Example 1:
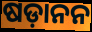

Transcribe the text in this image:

ଷଡ଼ାନନ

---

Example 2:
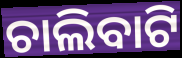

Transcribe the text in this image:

ଚାଲିବାଟି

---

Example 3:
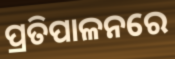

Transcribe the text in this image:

ପ୍ରତିପାଳନରେ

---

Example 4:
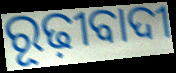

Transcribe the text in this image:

ରୂଢ଼ୀବାଦୀ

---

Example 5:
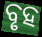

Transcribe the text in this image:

ବୃହ